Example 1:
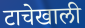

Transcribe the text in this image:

टाचेखाली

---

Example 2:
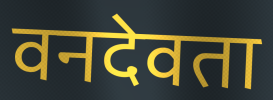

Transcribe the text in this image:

वनदेवता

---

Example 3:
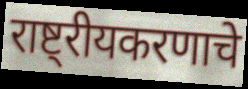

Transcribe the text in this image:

राष्ट्रीयकरणाचे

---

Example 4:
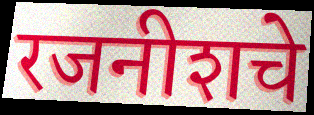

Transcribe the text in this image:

रजनीशचे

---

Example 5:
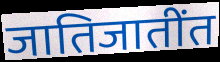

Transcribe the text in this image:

जातिजातींत